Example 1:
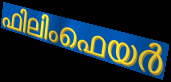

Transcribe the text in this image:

ഫിലിംഫെയർ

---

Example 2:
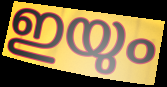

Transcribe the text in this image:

ഇയും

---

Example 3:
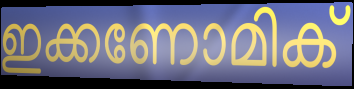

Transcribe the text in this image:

ഇക്കണോമിക്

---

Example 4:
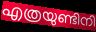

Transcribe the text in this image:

എത്രയുണ്ടിനി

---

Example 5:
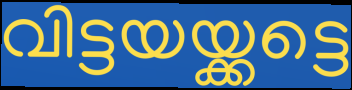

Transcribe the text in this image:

വിട്ടയയ്ക്കട്ടെ